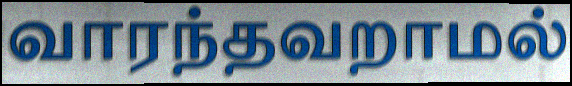
வாரந்தவறாமல்